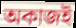
অকাজই